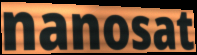
nanosat